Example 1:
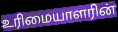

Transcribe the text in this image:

உரிமையாளரின்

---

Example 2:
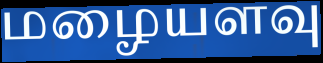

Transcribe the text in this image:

மழையளவு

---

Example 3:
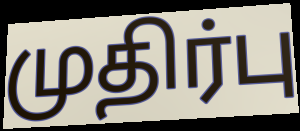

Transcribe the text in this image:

முதிர்பு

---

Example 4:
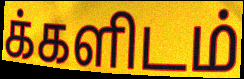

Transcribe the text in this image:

க்களிடம்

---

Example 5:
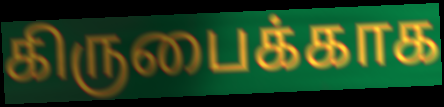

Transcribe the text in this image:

கிருபைக்காக